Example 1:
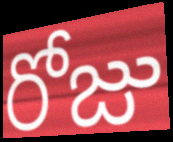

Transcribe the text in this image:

రోజు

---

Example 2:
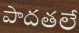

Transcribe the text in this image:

పాదతలే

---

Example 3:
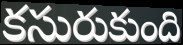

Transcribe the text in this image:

కసురుకుంది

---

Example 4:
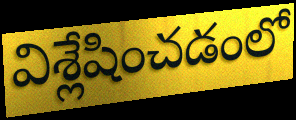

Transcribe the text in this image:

విశ్లేషించడంలో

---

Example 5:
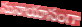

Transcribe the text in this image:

సునాయాసంగా